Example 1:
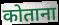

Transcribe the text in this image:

कोताना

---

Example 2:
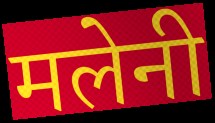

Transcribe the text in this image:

मलेनी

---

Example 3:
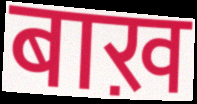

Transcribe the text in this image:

बाख़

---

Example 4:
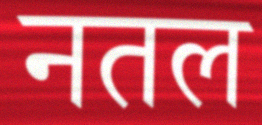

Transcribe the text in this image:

नतल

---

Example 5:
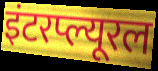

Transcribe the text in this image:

इंटरप्ल्यूरल